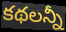
కథలన్నీ